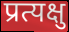
प्रत्यक्षु